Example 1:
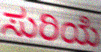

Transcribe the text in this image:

ಸುರಿಯೆ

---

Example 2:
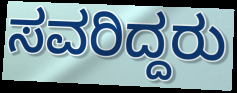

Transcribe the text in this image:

ಸವರಿದ್ದರು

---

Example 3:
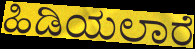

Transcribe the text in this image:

ಹಿಡಿಯಲಾರೆ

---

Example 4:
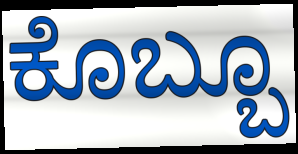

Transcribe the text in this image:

ಕೊಬ್ಬೂ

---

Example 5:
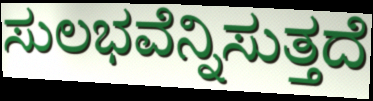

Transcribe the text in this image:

ಸುಲಭವೆನ್ನಿಸುತ್ತದೆ